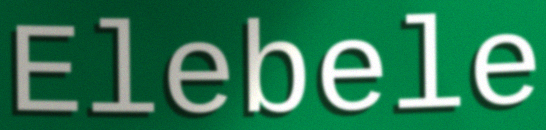
Elebele